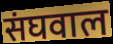
संघवाल